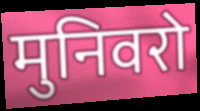
मुनिवरो